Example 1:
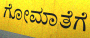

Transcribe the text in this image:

ಗೋಮಾತೆಗೆ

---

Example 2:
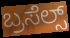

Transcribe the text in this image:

ಬ್ರಸೆಲ್ಸ್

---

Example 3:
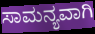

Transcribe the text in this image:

ಸಾಮನ್ಯವಾಗಿ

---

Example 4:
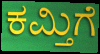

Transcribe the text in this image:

ಕಮ್ತಿಗೆ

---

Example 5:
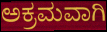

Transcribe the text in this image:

ಅಕ್ರಮವಾಗಿ